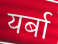
यर्बा